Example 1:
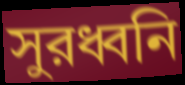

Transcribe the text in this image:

সুরধ্বনি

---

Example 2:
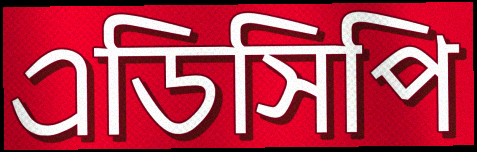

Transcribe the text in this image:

এডিসিপি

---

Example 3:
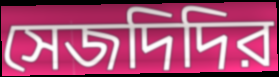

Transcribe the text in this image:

সেজদিদির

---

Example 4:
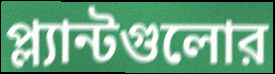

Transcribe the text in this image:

প্ল্যান্টগুলোর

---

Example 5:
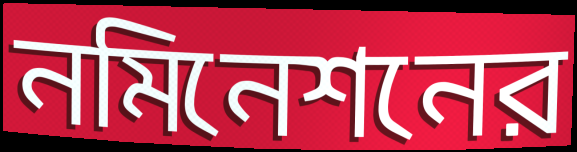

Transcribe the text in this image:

নমিনেশনের